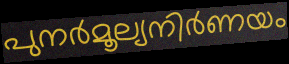
പുനർമൂല്യനിർണയം